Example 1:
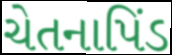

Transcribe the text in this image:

ચેતનાપિંડ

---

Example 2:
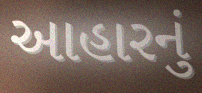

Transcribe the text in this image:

આહારનું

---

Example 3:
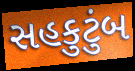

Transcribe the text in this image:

સહકુટુંબ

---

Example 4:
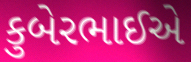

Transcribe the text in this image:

કુબેરભાઈએ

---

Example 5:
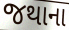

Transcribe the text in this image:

જથાના